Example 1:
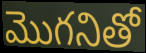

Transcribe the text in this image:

మొగనితో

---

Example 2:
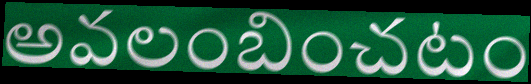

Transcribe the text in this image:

అవలంబించటం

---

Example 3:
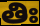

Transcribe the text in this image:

తిః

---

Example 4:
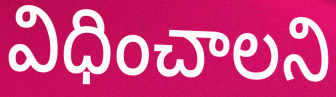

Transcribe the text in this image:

విధించాలని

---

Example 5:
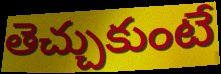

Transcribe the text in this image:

తెచ్చుకుంటే